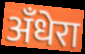
अँधेरा